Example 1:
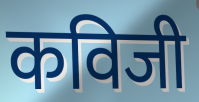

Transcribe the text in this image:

कविजी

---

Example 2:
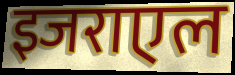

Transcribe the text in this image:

इजराएल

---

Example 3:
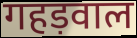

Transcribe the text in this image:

गहड़वाल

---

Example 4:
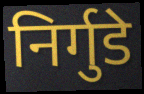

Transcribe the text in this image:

निर्गुडे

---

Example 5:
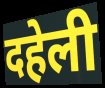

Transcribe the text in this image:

दहेली